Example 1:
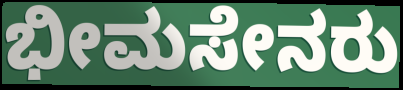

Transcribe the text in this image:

ಭೀಮಸೇನರು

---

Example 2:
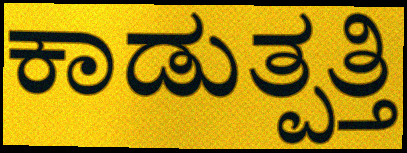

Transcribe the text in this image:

ಕಾಡುತ್ಪತ್ತಿ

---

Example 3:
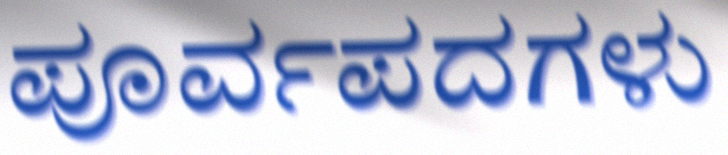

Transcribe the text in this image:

ಪೂರ್ವಪದಗಳು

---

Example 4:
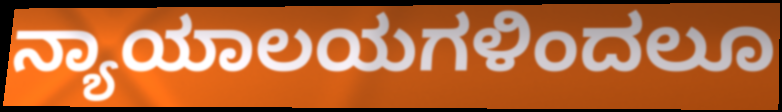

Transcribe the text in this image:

ನ್ಯಾಯಾಲಯಗಳಿಂದಲೂ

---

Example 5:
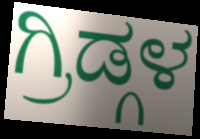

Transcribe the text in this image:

ಗ್ರಿಡ್ಗಳ